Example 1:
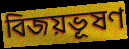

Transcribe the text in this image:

বিজয়ভূষণ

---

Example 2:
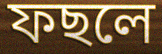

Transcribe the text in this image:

ফছলে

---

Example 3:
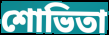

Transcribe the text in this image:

শোভিতা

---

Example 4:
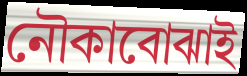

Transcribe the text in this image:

নৌকাবোঝাই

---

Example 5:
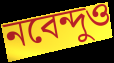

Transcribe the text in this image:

নবেন্দুও